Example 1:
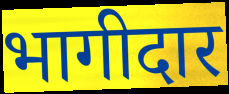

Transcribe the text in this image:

भागीदार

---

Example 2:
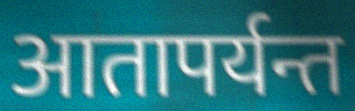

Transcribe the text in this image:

आतापर्यन्त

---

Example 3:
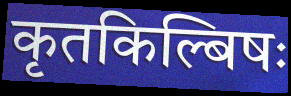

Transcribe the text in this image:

कृतकिल्बिषः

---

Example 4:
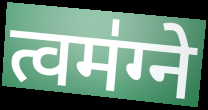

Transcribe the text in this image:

त्वम॑ग्ने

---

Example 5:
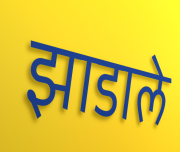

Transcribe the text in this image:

झाडाले